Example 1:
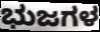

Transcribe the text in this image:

ಭುಜಗಳ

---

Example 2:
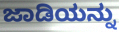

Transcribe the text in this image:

ಜಾಡಿಯನ್ನು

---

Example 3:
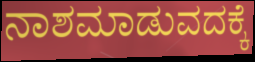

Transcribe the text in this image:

ನಾಶಮಾಡುವದಕ್ಕೆ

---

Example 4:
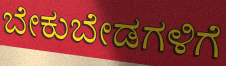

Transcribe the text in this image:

ಬೇಕುಬೇಡಗಳಿಗೆ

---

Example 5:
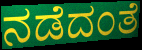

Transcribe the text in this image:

ನಡೆದಂತೆ